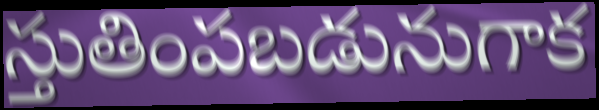
స్తుతింపబడునుగాక